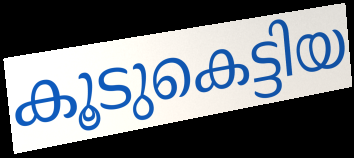
കൂടുകെട്ടിയ